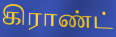
கிராண்ட்